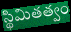
స్థిమితత్వం